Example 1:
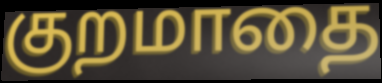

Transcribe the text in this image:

குறமாதை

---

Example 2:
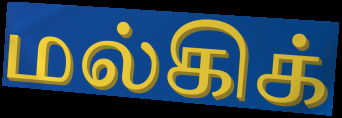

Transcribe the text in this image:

மல்கிக்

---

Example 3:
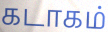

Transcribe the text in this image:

கடாகம்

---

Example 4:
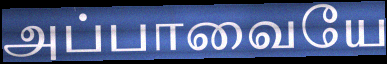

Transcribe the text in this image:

அப்பாவையே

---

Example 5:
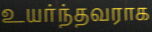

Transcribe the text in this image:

உயர்ந்தவராக